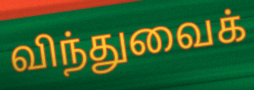
விந்துவைக்